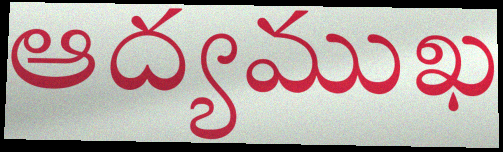
ఆద్యముఖ